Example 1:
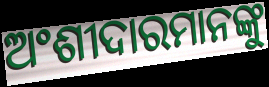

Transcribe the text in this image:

ଅଂଶୀଦାରମାନଙ୍କୁ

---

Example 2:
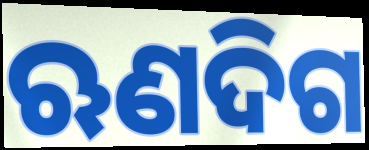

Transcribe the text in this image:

ଋଣଦିଗ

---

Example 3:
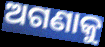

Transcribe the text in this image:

ଅଗଣାକୁ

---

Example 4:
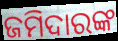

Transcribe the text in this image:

ଜମିଦାରଙ୍କ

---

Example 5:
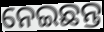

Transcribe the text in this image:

ନେଇଛନ୍ତ